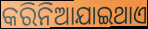
କରିନିଆଯାଇଥାଏ